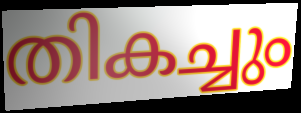
തികച്ചും